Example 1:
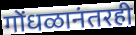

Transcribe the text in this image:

गोंधळानंतरही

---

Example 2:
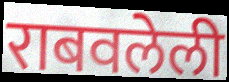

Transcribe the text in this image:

राबवलेली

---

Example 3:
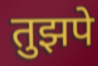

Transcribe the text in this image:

तुझपे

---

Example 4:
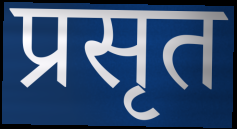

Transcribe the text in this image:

प्रसृत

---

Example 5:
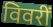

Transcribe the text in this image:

विवरीं